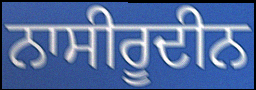
ਨਾਸੀਰੂਦੀਨ